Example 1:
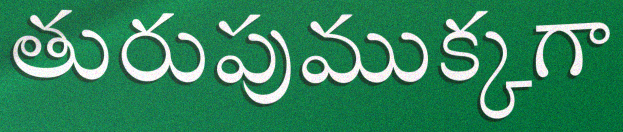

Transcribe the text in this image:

తురుపుముక్కగా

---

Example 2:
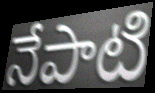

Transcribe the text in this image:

నేపాటి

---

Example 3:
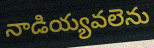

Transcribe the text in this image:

నాడియ్యవలెను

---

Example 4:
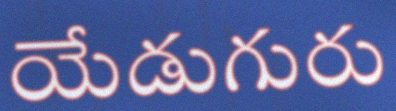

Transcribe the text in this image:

యేడుగురు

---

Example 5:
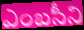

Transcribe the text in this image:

ఎంబసీని